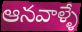
ఆనవాళ్ళే